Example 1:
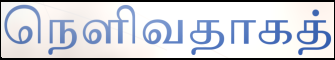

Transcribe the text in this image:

நெளிவதாகத்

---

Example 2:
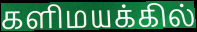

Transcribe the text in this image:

களிமயக்கில்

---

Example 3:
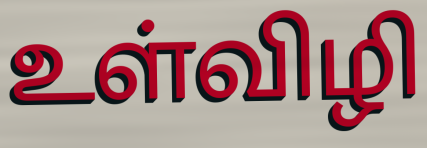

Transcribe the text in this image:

உள்விழி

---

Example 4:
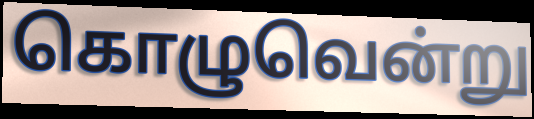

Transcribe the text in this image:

கொழுவென்று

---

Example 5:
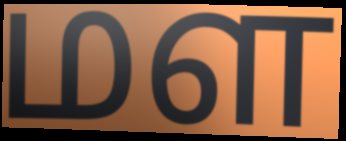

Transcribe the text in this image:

மள